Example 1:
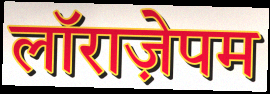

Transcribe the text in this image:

लॉराज़ेपम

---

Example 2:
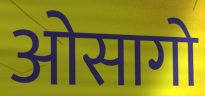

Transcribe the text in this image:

ओसागो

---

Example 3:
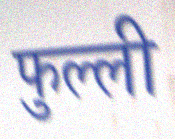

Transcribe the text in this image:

फुल्ली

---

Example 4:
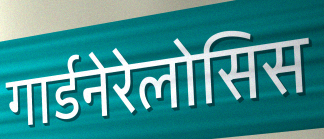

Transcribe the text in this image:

गार्डनेरेलोसिस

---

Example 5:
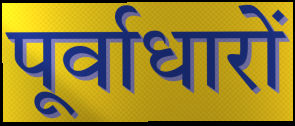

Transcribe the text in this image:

पूर्वाधारों